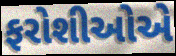
ફરોશીઓએ